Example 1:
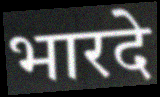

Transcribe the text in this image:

भारदे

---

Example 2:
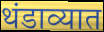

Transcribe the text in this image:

थंडाव्यात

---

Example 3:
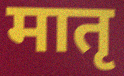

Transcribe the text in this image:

मातृ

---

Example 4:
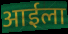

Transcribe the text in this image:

आईला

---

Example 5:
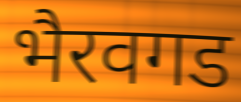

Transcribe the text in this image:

भैरवगड